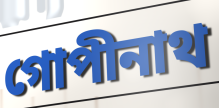
গোপীনাথ